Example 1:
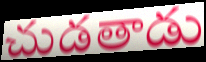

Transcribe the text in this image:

చుడతాడు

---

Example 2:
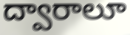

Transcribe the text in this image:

ద్వారాలూ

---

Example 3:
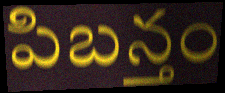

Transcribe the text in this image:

పిబన్తం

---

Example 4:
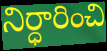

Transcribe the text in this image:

నిర్ధారించి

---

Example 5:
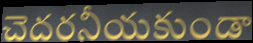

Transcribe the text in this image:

చెదరనీయకుండా